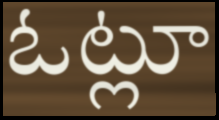
ఓట్లూ